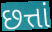
છત્તાં